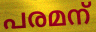
പരമന്